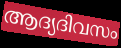
ആദ്യദിവസം